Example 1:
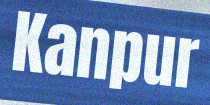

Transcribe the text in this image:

Kanpur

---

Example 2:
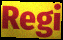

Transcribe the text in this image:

Regi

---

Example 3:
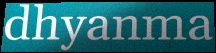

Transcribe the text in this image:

dhyanma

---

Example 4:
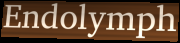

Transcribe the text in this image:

Endolymph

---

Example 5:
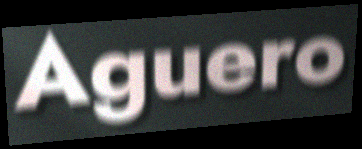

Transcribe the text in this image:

Aguero